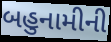
બહુનામીની